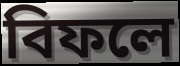
বিফলে